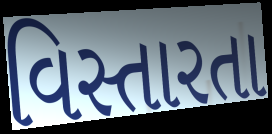
વિસ્તારતા